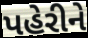
પહેરીને